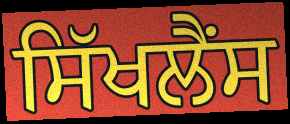
ਸਿੱਖਲੈਂਸ